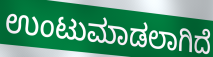
ಉಂಟುಮಾಡಲಾಗಿದೆ